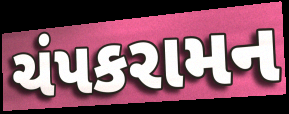
ચંપકરામન